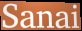
Sanai